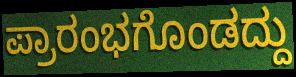
ಪ್ರಾರಂಭಗೊಂಡದ್ದು